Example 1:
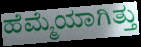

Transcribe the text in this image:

ಹೆಮ್ಮೆಯಾಗಿತ್ತು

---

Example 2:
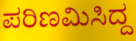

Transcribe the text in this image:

ಪರಿಣಮಿಸಿದ್ದ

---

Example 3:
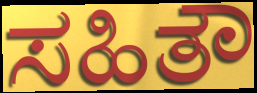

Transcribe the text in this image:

ಸಹಿತೌ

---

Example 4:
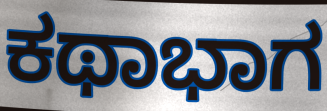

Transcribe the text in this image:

ಕಥಾಭಾಗ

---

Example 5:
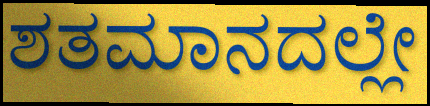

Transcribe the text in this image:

ಶತಮಾನದಲ್ಲೇ